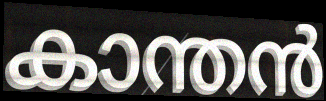
കാന്തൻ